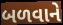
બળવાને